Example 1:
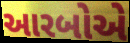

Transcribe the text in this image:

આરબોએ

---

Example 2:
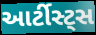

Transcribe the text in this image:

આર્ટીસ્ટ્સ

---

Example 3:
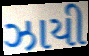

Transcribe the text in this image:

ઝાયી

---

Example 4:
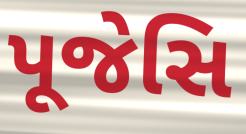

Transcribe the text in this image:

પૂજેસિ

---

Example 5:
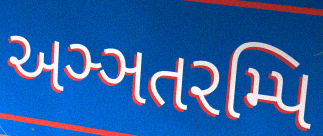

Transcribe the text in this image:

અઞ્ઞતરમ્પિ